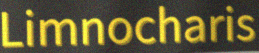
Limnocharis